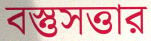
বস্তুসত্তার